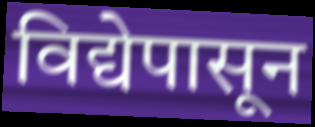
विद्येपासून